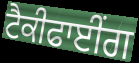
ਟੈਕੀਫਾਈਂਗ